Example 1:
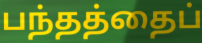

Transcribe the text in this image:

பந்தத்தைப்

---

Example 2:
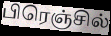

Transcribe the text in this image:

பிரெஞ்சில்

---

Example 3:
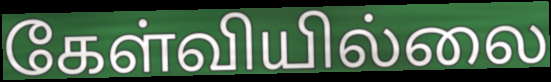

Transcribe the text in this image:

கேள்வியில்லை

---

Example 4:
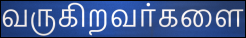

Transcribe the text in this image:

வருகிறவர்களை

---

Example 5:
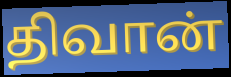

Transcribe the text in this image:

திவான்